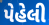
પેહેલી